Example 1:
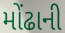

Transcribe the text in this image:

મોંઢાની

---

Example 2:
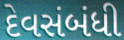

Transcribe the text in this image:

દેવસંબંધી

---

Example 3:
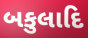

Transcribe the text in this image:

બકુલાદિ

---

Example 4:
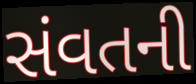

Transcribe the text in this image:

સંવતની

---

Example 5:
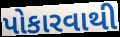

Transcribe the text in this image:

પોકારવાથી